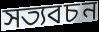
সত্যবচন